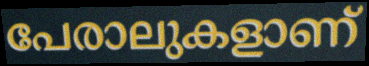
പേരാലുകളാണ്